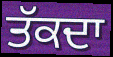
ਤੱਕਦਾ